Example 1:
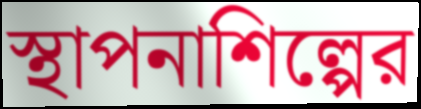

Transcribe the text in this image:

স্থাপনাশিল্পের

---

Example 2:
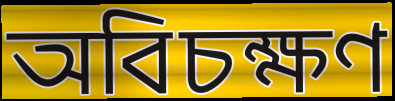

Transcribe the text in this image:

অবিচক্ষণ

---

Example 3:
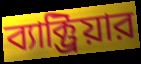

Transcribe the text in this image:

ব্যাক্ট্রিয়ার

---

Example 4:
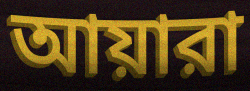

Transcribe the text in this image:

আয়ারা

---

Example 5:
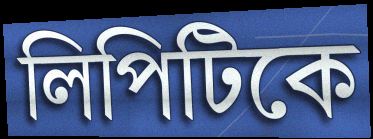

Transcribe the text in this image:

লিপিটিকে